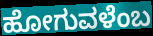
ಹೋಗುವಳೆಂಬ